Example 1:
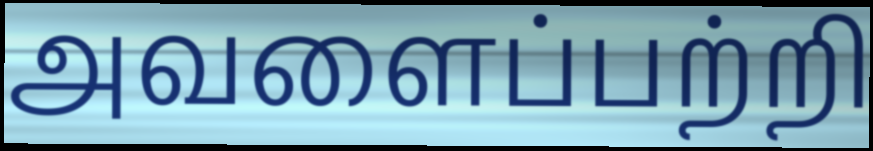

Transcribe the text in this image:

அவளைப்பற்றி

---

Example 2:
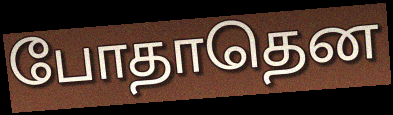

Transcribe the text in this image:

போதாதென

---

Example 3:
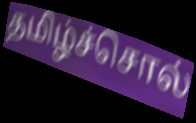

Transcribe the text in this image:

தமிழ்ச்சொல்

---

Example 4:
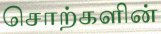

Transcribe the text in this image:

சொற்களின்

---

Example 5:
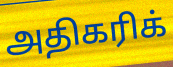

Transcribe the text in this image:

அதிகரிக்